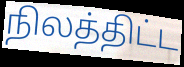
நிலத்திட்ட